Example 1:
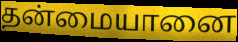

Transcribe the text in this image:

தன்மையானை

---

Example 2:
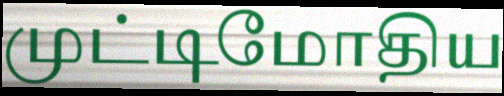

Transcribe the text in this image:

முட்டிமோதிய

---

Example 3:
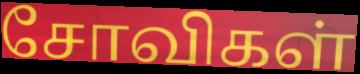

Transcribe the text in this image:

சோவிகள்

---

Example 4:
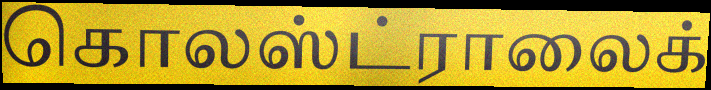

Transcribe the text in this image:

கொலஸ்ட்ராலைக்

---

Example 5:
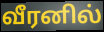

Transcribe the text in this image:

வீரனில்